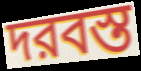
দরবস্ত